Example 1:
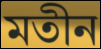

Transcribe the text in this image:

মতীন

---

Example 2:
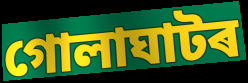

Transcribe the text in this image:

গোলাঘাটৰ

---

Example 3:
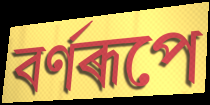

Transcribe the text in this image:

বৰ্ণৰূপে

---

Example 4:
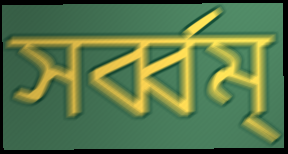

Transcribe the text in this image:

সৰ্ব্বম্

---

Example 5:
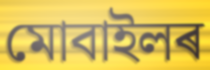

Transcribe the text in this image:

মোবাইলৰ